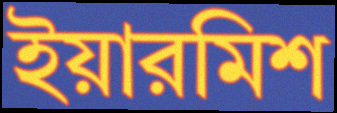
ইয়ারমিশ